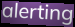
alerting